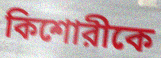
কিশোরীকে